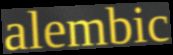
alembic